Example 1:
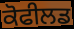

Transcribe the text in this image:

ਕੋਫੀਲਡ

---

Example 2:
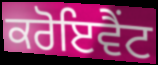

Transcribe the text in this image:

ਕਰੋਇਵੈਂਟ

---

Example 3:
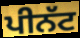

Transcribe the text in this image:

ਪੀਨੱਟ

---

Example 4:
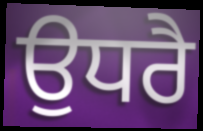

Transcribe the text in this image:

ਉਧਰੈ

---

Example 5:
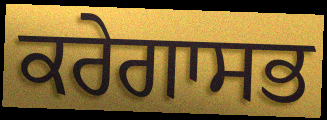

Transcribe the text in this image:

ਕਰੇਗਾਸਭ